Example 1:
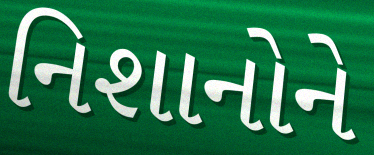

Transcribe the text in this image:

નિશાનોને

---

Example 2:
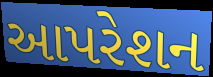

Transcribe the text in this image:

આપરેશન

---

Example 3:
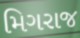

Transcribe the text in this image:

મિગરાજ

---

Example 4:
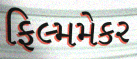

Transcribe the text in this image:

ફિલ્મમેકર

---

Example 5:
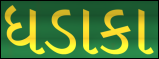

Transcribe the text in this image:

ધડાકા